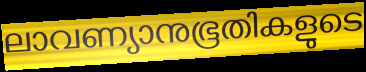
ലാവണ്യാനുഭൂതികളുടെ